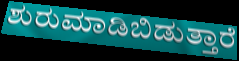
ಶುರುಮಾಡಿಬಿಡುತ್ತಾರೆ